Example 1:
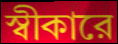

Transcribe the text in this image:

স্বীকারে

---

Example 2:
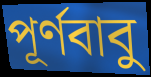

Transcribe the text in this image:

পূর্ণবাবু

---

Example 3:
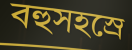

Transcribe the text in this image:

বহুসহস্রে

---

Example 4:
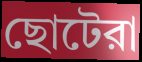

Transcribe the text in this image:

ছোটেরা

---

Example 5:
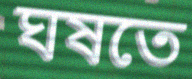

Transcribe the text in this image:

ঘষতে